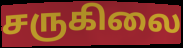
சருகிலை